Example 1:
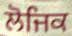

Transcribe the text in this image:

ਲੋਜਿਕ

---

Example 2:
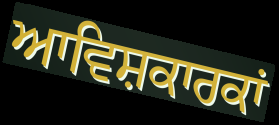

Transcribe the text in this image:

ਆਵਿਸ਼ਕਾਰਕਾਂ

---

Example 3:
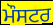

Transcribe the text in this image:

ਮੌਸਟਰ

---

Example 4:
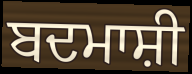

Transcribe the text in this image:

ਬਦਮਾਸ਼ੀ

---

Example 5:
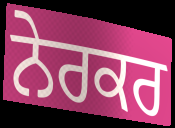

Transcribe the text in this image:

ਨੇਰਕਰ